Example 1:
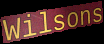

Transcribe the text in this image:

Wilsons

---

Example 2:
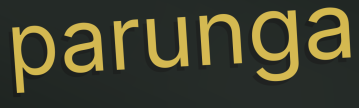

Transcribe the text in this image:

parunga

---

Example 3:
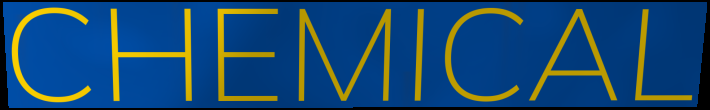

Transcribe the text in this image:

CHEMICAL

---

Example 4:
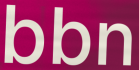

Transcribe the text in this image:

bbn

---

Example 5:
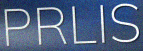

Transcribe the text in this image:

PRLIS